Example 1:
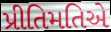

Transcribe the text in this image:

પ્રીતિમતિએ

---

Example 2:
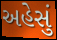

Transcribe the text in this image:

અહેસું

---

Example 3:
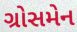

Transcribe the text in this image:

ગ્રોસમેન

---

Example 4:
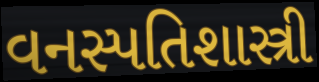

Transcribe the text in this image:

વનસ્પતિશાસ્ત્રી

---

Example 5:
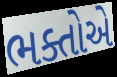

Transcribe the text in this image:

ભક્તોએ